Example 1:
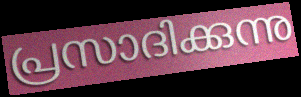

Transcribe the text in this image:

പ്രസാദിക്കുന്നു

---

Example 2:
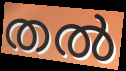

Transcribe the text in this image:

തൽ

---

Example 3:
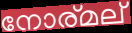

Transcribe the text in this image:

നോര്മല്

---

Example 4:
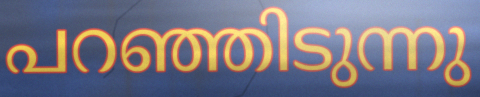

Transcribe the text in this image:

പറഞ്ഞിടുന്നു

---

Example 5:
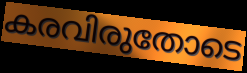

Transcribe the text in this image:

കരവിരുതോടെ